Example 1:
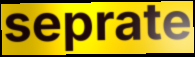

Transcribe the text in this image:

seprate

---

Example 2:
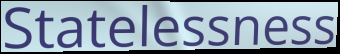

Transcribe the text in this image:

Statelessness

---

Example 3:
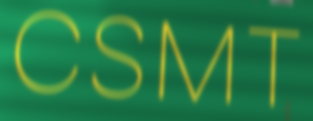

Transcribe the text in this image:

CSMT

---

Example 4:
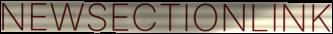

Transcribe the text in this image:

NEWSECTIONLINK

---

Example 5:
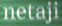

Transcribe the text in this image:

netaji